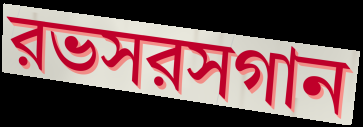
রভসরসগান